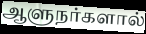
ஆளுநர்களால்